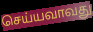
செய்யவாவது